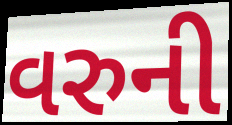
વરુની